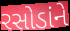
રસોડાંને